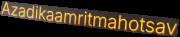
Azadikaamritmahotsav